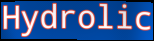
Hydrolic